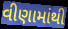
વીણામાંથી